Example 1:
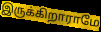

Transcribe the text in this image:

இருக்கிறாராமே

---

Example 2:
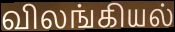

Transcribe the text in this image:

விலங்கியல்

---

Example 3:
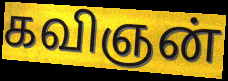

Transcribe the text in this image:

கவிஞன்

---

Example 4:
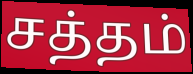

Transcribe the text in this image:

சத்தம்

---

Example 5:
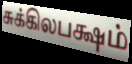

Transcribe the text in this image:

சுக்கிலபக்ஷம்